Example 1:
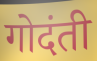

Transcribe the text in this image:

गोदंती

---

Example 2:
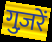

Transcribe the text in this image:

गुज़रें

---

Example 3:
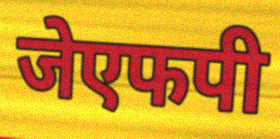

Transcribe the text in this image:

जेएफपी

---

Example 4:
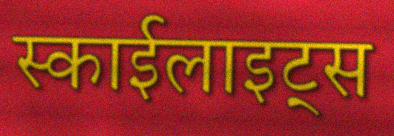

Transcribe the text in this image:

स्काईलाइट्स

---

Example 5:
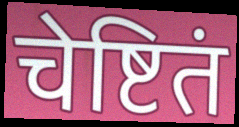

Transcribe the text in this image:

चेष्टितं